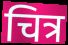
चित्र